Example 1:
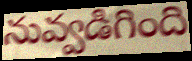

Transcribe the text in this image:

నువ్వడిగింది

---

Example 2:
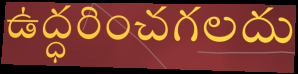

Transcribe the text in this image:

ఉద్ధరించగలదు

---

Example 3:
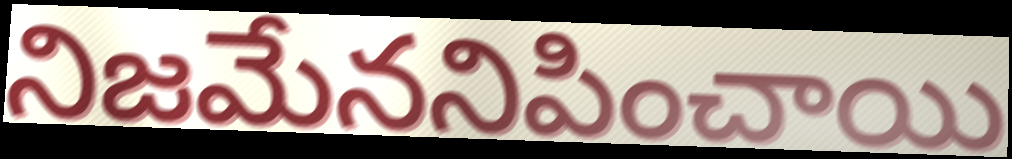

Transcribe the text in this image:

నిజమేననిపించాయి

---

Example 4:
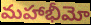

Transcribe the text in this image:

మహాభీమో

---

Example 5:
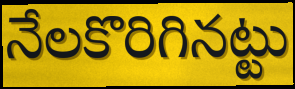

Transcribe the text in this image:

నేలకొరిగినట్టు